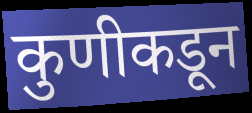
कुणीकडून